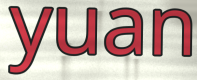
yuan